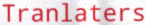
Tranlaters